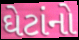
ઘેટાંનો